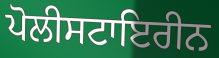
ਪੋਲੀਸਟਾਇਰੀਨ